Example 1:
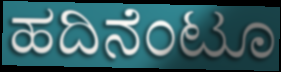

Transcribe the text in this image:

ಹದಿನೆಂಟೂ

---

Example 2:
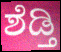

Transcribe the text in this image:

ಶೆಡ್ತಿ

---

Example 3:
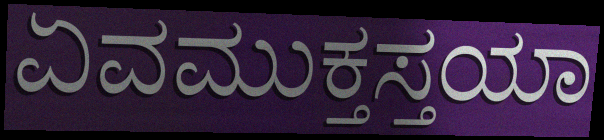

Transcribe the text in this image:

ಏವಮುಕ್ತಸ್ತಯಾ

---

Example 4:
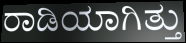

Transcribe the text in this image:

ರಾಡಿಯಾಗಿತ್ತು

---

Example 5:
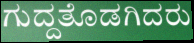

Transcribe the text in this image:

ಗುದ್ದತೊಡಗಿದರು